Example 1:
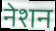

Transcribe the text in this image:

नेशन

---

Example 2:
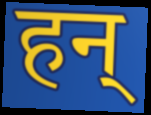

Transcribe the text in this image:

हन्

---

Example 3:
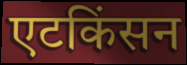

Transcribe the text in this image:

एटकिंसन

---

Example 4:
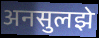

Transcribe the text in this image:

अनसुलझे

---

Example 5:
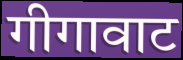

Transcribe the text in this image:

गीगावाट